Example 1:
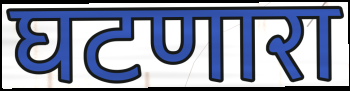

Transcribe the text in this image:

घटणारा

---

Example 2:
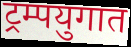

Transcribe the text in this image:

ट्रम्पयुगात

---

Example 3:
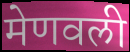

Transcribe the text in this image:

मेणवली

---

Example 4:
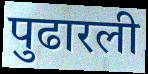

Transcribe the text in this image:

पुढारली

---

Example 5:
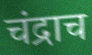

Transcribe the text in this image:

चंद्राच